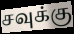
சவுக்கு